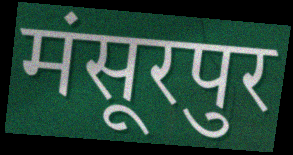
मंसूरपुर